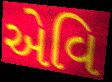
એવિ